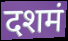
दशमं